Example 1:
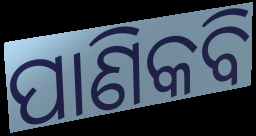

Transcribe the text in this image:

ପାଣିକବି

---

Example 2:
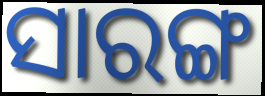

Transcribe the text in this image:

ସାରଙ୍ଗ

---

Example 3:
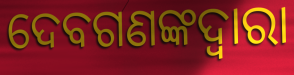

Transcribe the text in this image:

ଦେବଗଣଙ୍କଦ୍ୱାରା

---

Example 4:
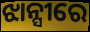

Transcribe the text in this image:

ଝାନ୍ସୀରେ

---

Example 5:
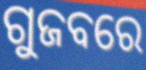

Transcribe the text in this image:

ଗୁଜବରେ